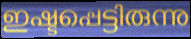
ഇഷ്ടപ്പെട്ടിരുന്നു